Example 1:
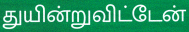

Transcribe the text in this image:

துயின்றுவிட்டேன்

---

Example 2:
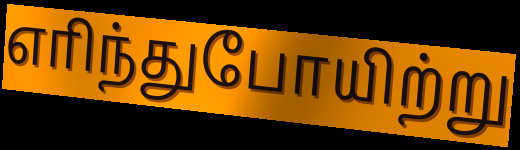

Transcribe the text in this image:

எரிந்துபோயிற்று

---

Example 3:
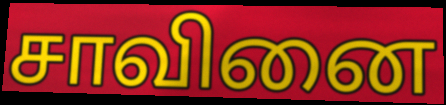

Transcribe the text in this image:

சாவினை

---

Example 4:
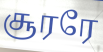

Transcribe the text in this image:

சூரரே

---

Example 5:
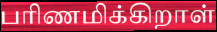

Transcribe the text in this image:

பரிணமிக்கிறாள்